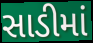
સાડીમાં